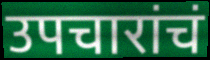
उपचारांचं